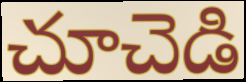
చూచెడి